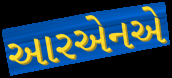
આરએનએ